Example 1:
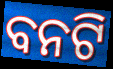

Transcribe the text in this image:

ବନଟି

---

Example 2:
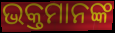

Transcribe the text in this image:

ଭକ୍ତମାନଙ୍କ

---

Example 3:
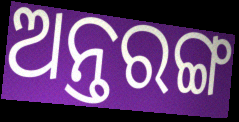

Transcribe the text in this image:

ଅନ୍ତରଙ୍ଗ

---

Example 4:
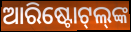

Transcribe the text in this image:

ଆରିଷ୍ଟୋଟ୍‌ଲ୍‌ଙ୍କ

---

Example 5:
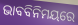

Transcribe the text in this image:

ଭାବବିନିମୟରେ